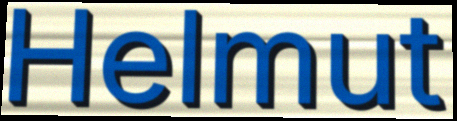
Helmut